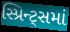
સ્પ્રિન્ટ્સમાં